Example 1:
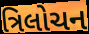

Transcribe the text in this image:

ત્રિલોચન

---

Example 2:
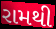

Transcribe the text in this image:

રામથી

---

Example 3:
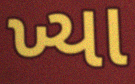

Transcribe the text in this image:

ખ્યા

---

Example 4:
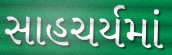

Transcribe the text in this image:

સાહચર્યમાં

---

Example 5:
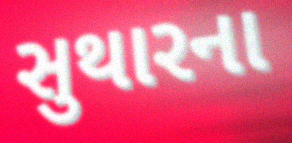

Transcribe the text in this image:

સુથારના